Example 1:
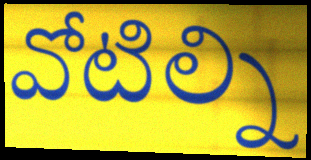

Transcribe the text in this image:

వోటిల్ని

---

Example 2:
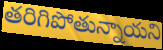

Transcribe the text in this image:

తరిగిపోతున్నాయని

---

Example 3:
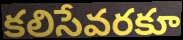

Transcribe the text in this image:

కలిసేవరకూ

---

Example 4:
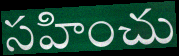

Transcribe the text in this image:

సహించు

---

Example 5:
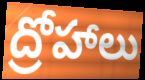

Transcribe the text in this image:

ద్రోహాలు